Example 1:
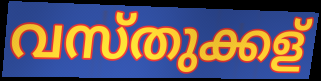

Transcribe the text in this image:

വസ്തുക്കള്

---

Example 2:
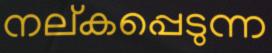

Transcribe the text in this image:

നല്കപ്പെടുന്ന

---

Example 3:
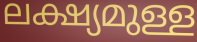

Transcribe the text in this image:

ലക്ഷ്യമുള്ള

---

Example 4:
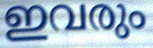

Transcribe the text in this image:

ഇവരും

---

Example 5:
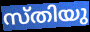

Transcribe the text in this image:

സ്തിയു